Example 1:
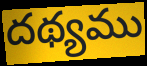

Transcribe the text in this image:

దథ్యము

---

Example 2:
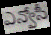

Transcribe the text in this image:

ఎన్వోసీ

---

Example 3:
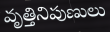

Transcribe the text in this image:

వృత్తినిపుణులు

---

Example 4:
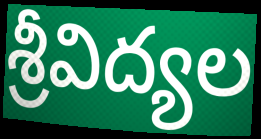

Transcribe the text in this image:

శ్రీవిద్యల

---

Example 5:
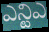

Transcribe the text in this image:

ఎన్టిఎ